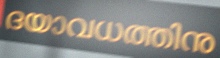
ദയാവധത്തിനു